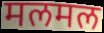
मलमल